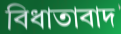
বিধাতাবাদ